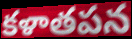
కళాతపన